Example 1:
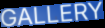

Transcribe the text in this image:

GALLERY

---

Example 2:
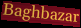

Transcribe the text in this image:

Baghbazar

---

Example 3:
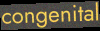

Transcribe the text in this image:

congenital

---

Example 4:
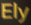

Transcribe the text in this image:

Ely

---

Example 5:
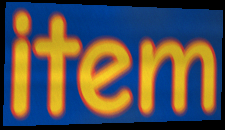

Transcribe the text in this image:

item